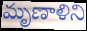
మృణాళిని